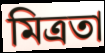
মিত্ৰতা